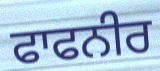
ਫਾਫਨੀਰ